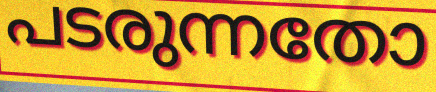
പടരുന്നതോ